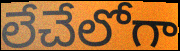
లేచేలోగా